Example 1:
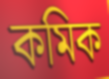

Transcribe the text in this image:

কমিক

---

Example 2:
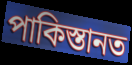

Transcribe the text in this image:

পাকিস্তানত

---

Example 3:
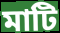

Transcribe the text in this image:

মাটি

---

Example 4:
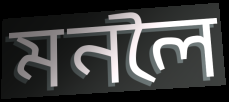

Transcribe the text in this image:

মনলৈ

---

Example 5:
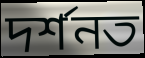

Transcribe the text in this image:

দৰ্শনত